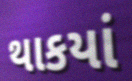
થાકયાં